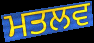
ਮਤਲਵ